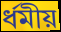
ৰ্ধমীয়